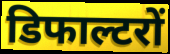
डिफाल्टरों